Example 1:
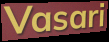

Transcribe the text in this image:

Vasari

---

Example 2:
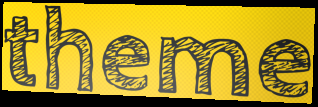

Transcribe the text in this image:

theme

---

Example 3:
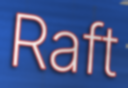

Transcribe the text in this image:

Raft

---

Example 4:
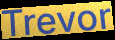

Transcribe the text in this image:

Trevor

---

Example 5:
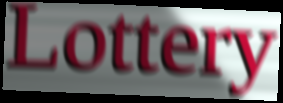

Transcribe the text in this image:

Lottery